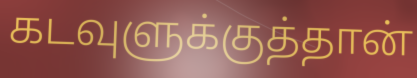
கடவுளுக்குத்தான்